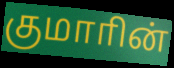
குமாரின்